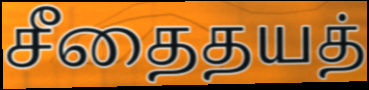
சீதைதயத்